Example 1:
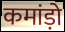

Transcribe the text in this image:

कमांड़ो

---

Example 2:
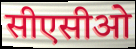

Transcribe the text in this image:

सीएसीओ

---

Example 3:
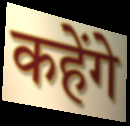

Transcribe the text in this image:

कहेंगे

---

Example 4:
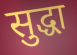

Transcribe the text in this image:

सुद्धा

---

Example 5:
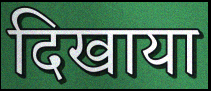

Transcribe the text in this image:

दिखाया